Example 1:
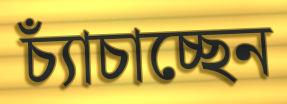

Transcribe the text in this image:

চ্যাঁচাচ্ছেন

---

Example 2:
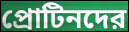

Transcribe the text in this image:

প্রোটিনদের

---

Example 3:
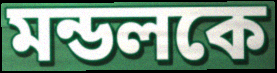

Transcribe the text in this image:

মন্ডলকে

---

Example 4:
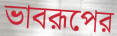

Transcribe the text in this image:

ভাবরূপের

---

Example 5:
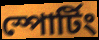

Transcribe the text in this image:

স্পোর্টিং